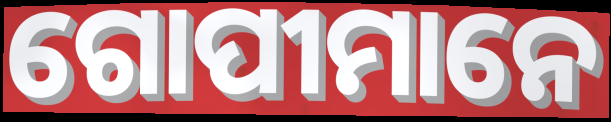
ଗୋପୀମାନେ